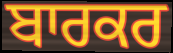
ਬਾਰਕਰ